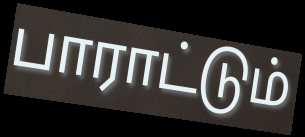
பாராட்டும்